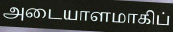
அடையாளமாகிப்